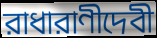
রাধারাণীদেবী